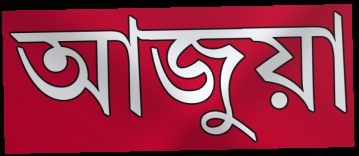
আজুয়া